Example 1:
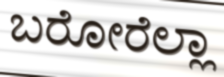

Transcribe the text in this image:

ಬರೋರೆಲ್ಲಾ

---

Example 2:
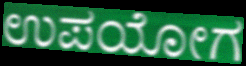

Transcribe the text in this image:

ಉಪಯೋಗ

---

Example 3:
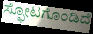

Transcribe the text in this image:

ಸ್ಫೋಟಗೊಂಡಿದೆ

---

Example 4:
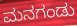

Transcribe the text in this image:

ಮನಗಂಡು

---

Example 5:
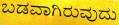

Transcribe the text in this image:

ಬಡವಾಗಿರುವುದು